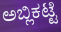
ಅಬ್ಲಿಕಟ್ಟೆ